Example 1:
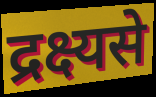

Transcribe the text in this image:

द्रक्ष्यसे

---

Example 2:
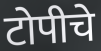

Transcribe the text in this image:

टोपीचे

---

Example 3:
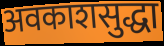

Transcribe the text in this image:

अवकाशसुद्धा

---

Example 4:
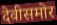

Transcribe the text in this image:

देवीसमोर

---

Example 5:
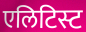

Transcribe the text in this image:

एलिटिस्ट